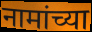
नामांच्या